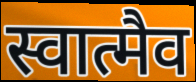
स्वात्मैव